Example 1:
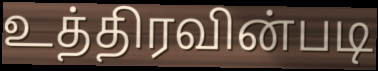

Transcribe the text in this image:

உத்திரவின்படி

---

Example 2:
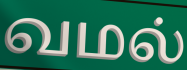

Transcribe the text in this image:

வமல்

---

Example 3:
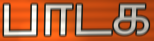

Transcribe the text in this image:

பாடக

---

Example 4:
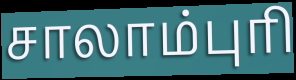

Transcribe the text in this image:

சாலாம்புரி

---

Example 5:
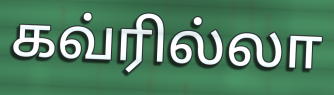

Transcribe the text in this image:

கவ்ரில்லா